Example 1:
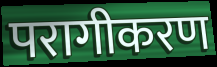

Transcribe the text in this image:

परागीकरण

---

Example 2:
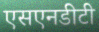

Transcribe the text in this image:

एसएनडीटी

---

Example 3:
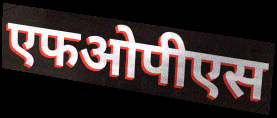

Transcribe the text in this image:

एफओपीएस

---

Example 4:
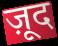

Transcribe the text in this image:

ज़ूद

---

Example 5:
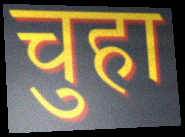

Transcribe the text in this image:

चुहा